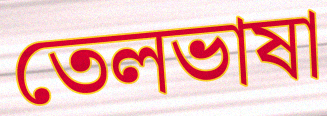
তেলভাষা